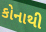
કોનાથી